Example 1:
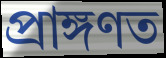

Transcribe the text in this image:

প্ৰাঙ্গণত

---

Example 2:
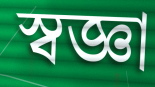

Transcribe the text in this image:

স্বজ্ঞা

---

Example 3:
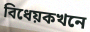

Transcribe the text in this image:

বিধেয়কখনে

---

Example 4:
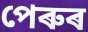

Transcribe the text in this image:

পেৰুৰ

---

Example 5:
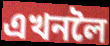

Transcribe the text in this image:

এখনলৈ